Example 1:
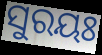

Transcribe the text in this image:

ସୁରୟଃ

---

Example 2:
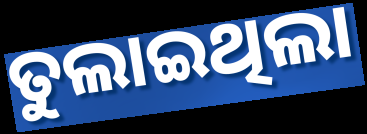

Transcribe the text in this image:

ତୁଲାଇଥିଲା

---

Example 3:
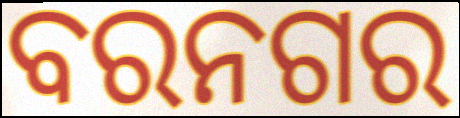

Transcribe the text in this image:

ବରନଗର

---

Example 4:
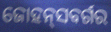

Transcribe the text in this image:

ଜୋହନ୍‌ସବର୍ଗର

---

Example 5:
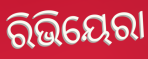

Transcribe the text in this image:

ରିଭିୟେରା